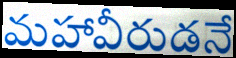
మహావీరుడనే